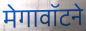
मेगावॉटने